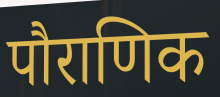
पौराणिक